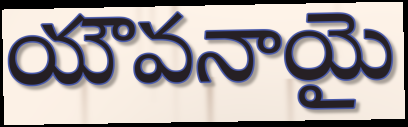
యౌవనాయై